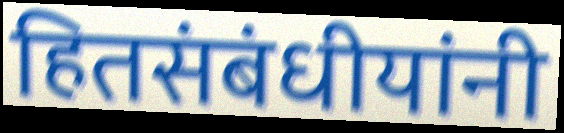
हितसंबंधीयांनी